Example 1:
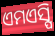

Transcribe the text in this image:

ଏମଏସ୍ପି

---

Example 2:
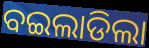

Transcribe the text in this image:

ବଇଲାଡିଲା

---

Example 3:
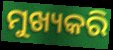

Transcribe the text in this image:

ମୁଖ୍ୟକରି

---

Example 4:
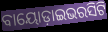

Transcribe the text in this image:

ବାୟୋଡ଼ାଇଭରସିଟି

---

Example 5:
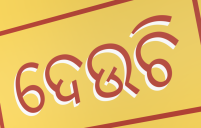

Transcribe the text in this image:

ଦେଉଚି